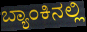
ಬ್ಯಾಂಕಿನಲ್ಲಿ